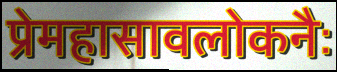
प्रेमहासावलोकनैः